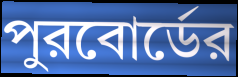
পুরবোর্ডের